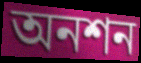
অনশন